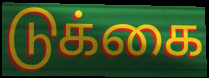
டுக்கை